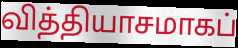
வித்தியாசமாகப்